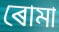
ৰোমা